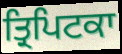
ਤ੍ਰਿਪਿਟਕਾ